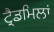
ਟ੍ਰੈਡਮਿਲਾਂ